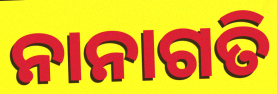
ନାନାଗତି